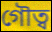
গৌত্ব